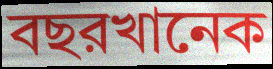
বছরখানেক